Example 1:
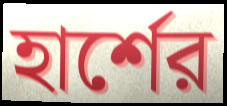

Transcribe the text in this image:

হার্শের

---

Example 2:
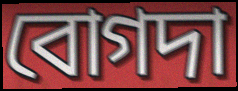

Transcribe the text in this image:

বোগদা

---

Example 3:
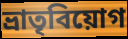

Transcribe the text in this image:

ভ্রাতৃবিয়োগ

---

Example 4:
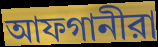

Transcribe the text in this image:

আফগানীরা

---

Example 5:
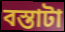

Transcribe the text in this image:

বস্তাটা